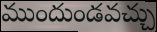
ముందుండవచ్చు